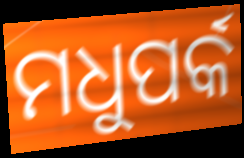
ମଧୁପର୍କ